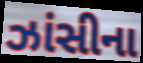
ઝાંસીના